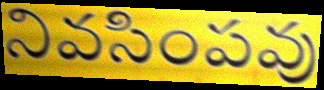
నివసింపవు